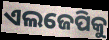
ଏଲଜେପିକୁ